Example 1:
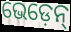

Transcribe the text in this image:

ଭେଡ଼େନ୍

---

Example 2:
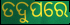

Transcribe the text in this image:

ତଦୁପରେ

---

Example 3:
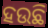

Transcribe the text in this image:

ହଉଛି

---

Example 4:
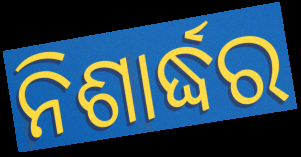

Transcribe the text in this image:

ନିଶାର୍ଦ୍ଧର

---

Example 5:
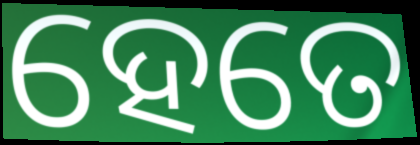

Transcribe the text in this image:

ହେତେ